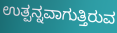
ಉತ್ಪನ್ನವಾಗುತ್ತಿರುವ